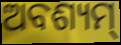
ଅବଶ୍ୟମ୍